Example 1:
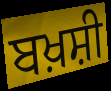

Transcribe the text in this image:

ਬਖ਼ਸ਼ੀ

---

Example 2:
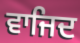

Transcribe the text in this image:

ਵਾਜਿਦ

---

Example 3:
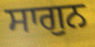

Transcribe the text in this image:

ਸਾਗੁਨ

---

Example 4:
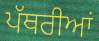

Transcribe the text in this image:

ਪੱਥਰੀਆਂ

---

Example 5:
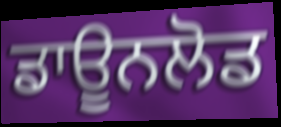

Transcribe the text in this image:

ਡਾਊਨਲੋਡ